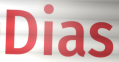
Dias